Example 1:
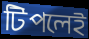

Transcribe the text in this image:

টিপলেই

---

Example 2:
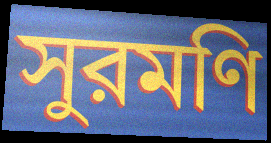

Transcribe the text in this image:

সুরমণি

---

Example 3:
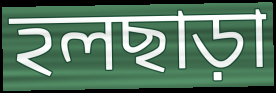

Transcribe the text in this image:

হলছাড়া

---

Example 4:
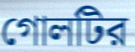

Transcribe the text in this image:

গোলটির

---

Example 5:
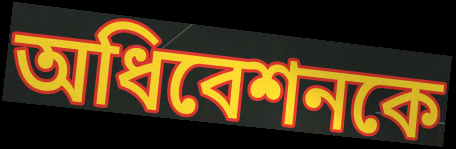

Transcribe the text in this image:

অধিবেশনকে